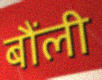
बौंली